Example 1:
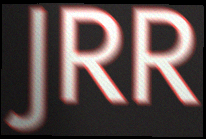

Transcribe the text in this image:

JRR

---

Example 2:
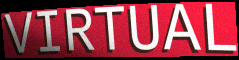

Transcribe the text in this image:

VIRTUAL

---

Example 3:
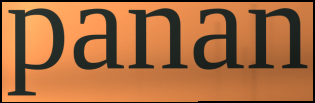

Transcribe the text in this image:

panan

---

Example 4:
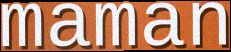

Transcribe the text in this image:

maman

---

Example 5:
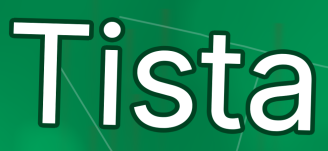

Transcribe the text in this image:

Tista